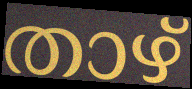
താഴ്